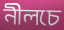
নীলচে